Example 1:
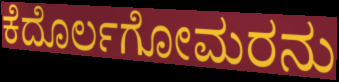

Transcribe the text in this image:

ಕೆದೊರ್ಲಗೋಮರನು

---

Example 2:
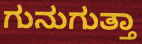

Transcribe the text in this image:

ಗುನುಗುತ್ತಾ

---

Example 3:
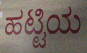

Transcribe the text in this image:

ಹಟ್ಟಿಯ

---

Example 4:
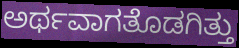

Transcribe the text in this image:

ಅರ್ಥವಾಗತೊಡಗಿತ್ತು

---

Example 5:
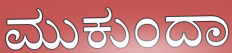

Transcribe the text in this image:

ಮುಕುಂದಾ